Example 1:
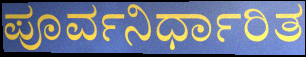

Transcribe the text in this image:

ಪೂರ್ವನಿರ್ಧಾರಿತ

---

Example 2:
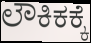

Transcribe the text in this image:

ಲೌಕಿಕಕ್ಕೆ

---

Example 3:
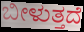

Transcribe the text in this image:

ಬೀಳುತ್ತದೆ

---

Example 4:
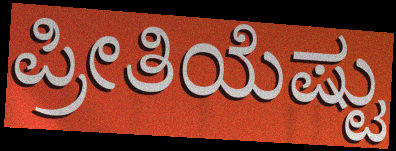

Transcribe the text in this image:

ಪ್ರೀತಿಯೆಷ್ಟು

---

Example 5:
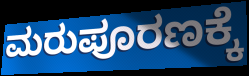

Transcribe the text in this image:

ಮರುಪೂರಣಕ್ಕೆ